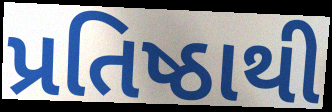
પ્રતિષ્ઠાથી